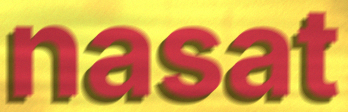
nasat